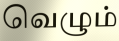
வெழும்